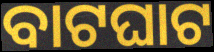
ବାଟଘାଟ